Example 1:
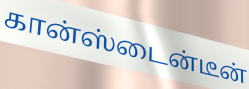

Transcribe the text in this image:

கான்ஸ்டைன்டீன்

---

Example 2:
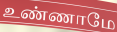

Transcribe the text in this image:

உண்ணாமே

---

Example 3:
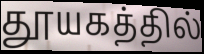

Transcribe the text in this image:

தூயகத்தில்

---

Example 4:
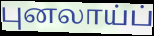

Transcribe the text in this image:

புனலாய்ப்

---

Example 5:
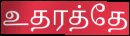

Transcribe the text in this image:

உதரத்தே